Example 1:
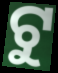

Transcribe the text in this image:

ଟୁ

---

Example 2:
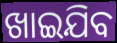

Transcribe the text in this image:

ଖାଇଯିବ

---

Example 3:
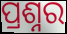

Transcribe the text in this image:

ପ୍ରଶ୍ନର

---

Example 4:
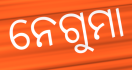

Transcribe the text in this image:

ନେଗୁମା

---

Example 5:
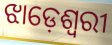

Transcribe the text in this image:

ଝାଡ଼େଶ୍ୱରୀ